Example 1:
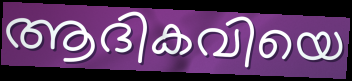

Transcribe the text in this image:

ആദികവിയെ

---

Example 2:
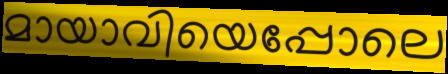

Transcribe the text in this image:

മായാവിയെപ്പോലെ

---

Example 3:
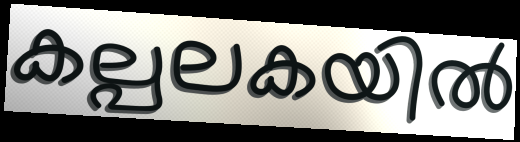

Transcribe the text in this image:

കല്പലകയിൽ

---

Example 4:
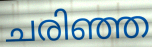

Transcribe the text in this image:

ചരിഞ്ഞ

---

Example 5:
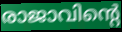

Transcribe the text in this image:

രാജാവിന്റെ